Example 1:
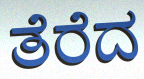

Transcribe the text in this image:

ತೆರೆದ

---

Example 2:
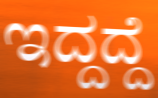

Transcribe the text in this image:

ಇದ್ದದ್ದೆ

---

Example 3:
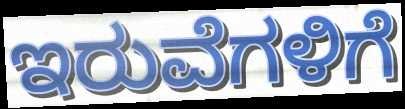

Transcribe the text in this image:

ಇರುವೆಗಳಿಗೆ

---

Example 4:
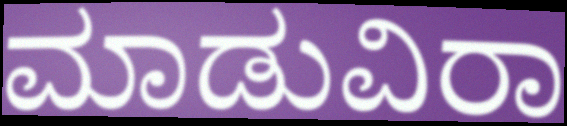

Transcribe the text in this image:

ಮಾಡುವಿರಾ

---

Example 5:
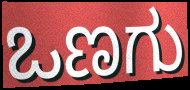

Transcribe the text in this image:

ಒಣಗು